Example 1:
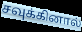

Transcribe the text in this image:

சவுக்கினால்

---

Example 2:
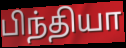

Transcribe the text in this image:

பிந்தியா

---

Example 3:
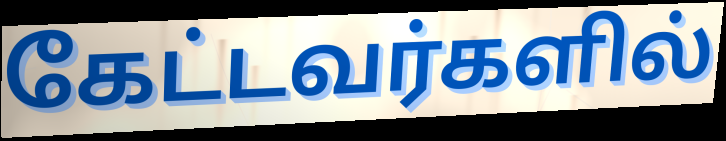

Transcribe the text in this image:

கேட்டவர்களில்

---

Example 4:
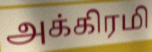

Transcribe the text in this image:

அக்கிரமி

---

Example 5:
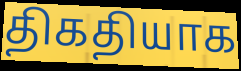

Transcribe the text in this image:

திகதியாக